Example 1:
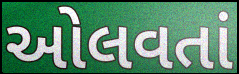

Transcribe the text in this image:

ઓલવતાં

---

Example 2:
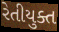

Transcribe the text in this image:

રેતીયુક્ત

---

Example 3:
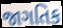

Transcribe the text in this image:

જાગતિક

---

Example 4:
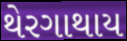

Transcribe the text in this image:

થેરગાથાય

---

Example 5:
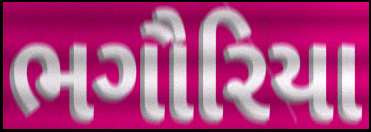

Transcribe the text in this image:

ભગૌરિયા